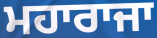
ਮਹਾਰਾਜਾ